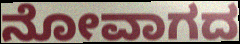
ನೋವಾಗದ